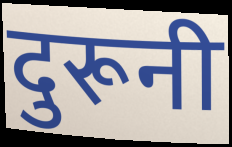
दुरूनी